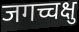
जगच्चक्षु